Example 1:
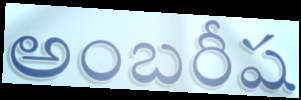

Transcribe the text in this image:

అంబరీష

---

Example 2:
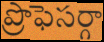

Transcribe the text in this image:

ప్రొఫెసర్గా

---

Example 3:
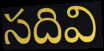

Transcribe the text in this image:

సదివి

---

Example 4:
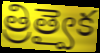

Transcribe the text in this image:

త్రిత్వైక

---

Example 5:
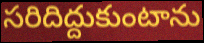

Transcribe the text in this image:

సరిదిద్దుకుంటాను